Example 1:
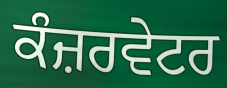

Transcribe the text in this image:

ਕੰਜ਼ਰਵੇਟਰ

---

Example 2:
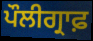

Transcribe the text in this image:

ਪੌਲੀਗ੍ਰਾਫ਼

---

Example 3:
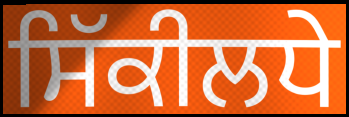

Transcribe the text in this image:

ਸਿੱਕੀਲਧੇ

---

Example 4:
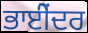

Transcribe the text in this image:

ਭਾਈੇਂਦਰ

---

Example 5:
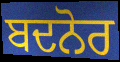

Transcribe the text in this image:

ਬਦਨੋਰ